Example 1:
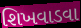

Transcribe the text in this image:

શિખવાડવા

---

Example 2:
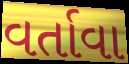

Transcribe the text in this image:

વર્તાવા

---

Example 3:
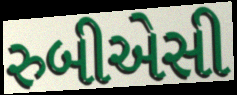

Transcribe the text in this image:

રુબીએસી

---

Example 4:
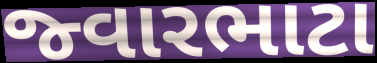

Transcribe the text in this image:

જ્વારભાટા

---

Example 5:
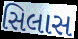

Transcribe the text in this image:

સિલાસ